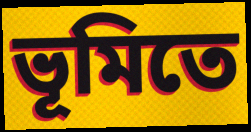
ভূমিতে